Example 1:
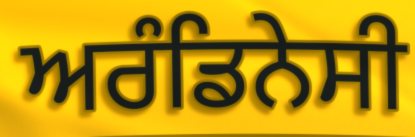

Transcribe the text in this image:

ਅਰੰਡਿਨੇਸੀ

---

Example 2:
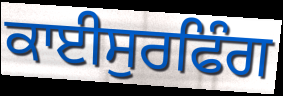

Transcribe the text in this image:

ਕਾਈਸੁਰਫਿੰਗ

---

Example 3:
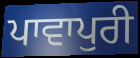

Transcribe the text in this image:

ਪਾਵਾਪੁਰੀ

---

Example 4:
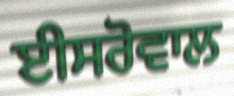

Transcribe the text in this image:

ਈਸਰੋਵਾਲ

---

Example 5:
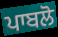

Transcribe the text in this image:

ਪਾਬਲੋ